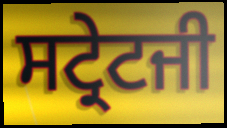
ਸਟ੍ਰੇਟਜੀ